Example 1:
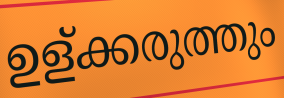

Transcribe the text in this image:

ഉള്ക്കരുത്തും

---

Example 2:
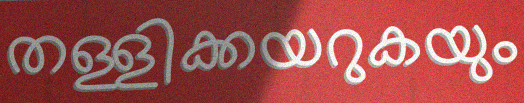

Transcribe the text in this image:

തള്ളിക്കയറുകയും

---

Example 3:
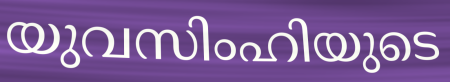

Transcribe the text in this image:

യുവസിംഹിയുടെ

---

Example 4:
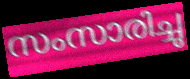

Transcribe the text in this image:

സംസാരിച്ചു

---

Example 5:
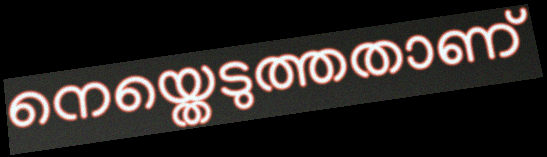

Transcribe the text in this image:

നെയ്തെടുത്തതാണ്